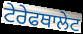
ਟੇਰੇਫਥਾਲੇਟ